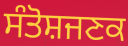
ਸੰਤੋਸ਼ਜਣਕ